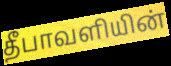
தீபாவளியின்